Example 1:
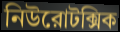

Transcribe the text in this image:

নিউরোটক্সিক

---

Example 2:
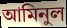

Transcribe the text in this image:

আমিনুল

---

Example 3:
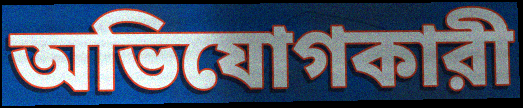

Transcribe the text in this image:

অভিযোগকারী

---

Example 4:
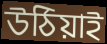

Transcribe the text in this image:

উঠিয়াই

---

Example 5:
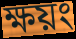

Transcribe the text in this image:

ক্ষয়ং